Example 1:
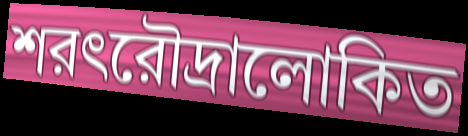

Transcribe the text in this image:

শরৎরৌদ্রালোকিত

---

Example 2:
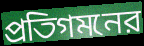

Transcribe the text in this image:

প্রতিগমনের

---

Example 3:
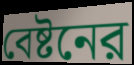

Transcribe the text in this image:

বেষ্টনের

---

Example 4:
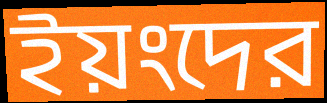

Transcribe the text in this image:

ইয়ংদের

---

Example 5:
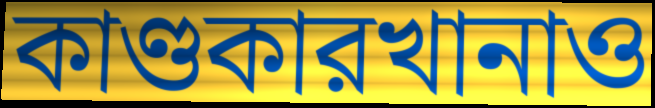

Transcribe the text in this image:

কাণ্ডকারখানাও